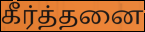
கீர்த்தனை